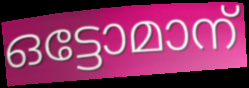
ഒട്ടോമാന്